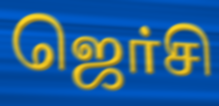
ஜெர்சி